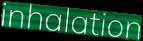
inhalation